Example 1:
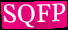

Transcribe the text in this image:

SQFP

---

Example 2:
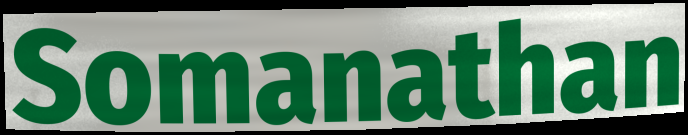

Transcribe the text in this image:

Somanathan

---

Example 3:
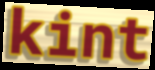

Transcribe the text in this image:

kint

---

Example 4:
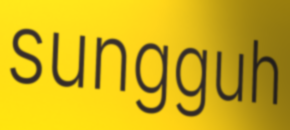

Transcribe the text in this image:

sungguh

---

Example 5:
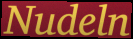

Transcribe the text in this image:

Nudeln